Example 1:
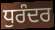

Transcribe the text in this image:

ਧੁਰੰਦਰ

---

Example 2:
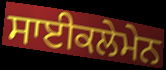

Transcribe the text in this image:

ਸਾਈਕਲੇਮੇਨ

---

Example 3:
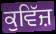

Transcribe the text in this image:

ਕੁਵਿੱਜ਼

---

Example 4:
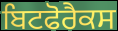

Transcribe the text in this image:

ਬਿਟਫੋਰੈਕਸ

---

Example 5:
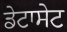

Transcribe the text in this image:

ਡੇਟਾਸੇਟ